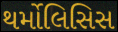
થર્મોલિસિસ